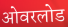
ओवरलोड